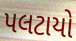
પલટાયો